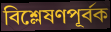
বিশ্লেষণপূর্বক